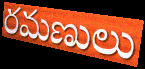
రమణులు